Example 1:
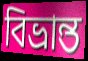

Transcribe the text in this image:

বিভ্ৰান্ত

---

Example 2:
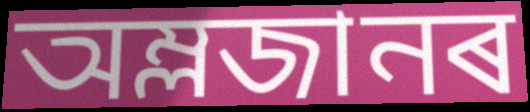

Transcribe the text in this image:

অম্লজানৰ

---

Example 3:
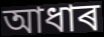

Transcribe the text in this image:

আধাৰ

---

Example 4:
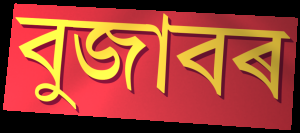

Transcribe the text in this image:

বুজাবৰ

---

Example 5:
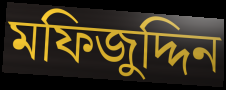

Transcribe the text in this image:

মফিজুদ্দিন